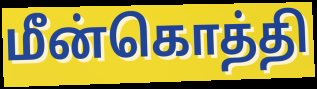
மீன்கொத்தி